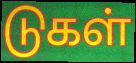
டுகள்